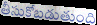
తీసుకోబడుతుంది